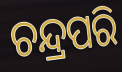
ଚନ୍ଦ୍ରପରି